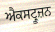
ਐਕਸਟ੍ਰੂਜ਼ਨ